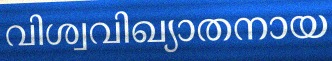
വിശ്വവിഖ്യാതനായ